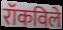
रॉकविले